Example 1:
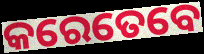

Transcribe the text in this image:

କରେତେବେ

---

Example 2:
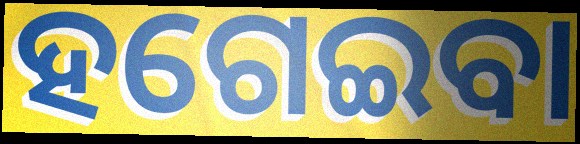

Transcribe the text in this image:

ହଗେଇବା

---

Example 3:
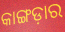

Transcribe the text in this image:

କାଙ୍ଗଡ଼ାର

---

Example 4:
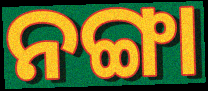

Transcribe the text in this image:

ନଙ୍ଗା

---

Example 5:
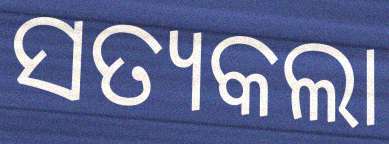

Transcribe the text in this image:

ସତ୍ୟକଲା